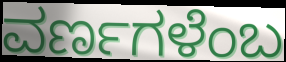
ವರ್ಣಗಳೆಂಬ